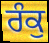
ਰੰਕੁ